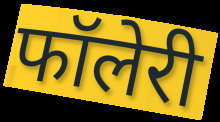
फॉलेरी